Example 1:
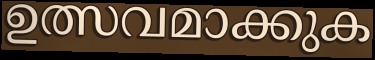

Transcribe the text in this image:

ഉത്സവമാക്കുക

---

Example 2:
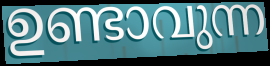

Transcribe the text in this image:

ഉണ്ടാവുന്ന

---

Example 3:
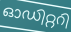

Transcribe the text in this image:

ഓഡിറ്ററി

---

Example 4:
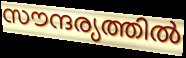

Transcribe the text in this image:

സൗന്ദര്യത്തിൽ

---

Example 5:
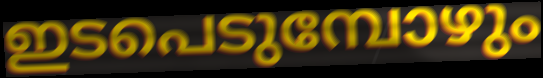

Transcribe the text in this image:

ഇടപെടുമ്പോഴും